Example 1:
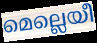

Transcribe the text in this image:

മെല്ലെയീ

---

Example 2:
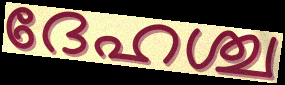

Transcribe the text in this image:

ദേഹശ്ച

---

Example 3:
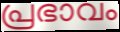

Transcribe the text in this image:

പ്രഭാവം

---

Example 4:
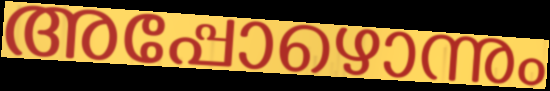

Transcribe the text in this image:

അപ്പോഴൊന്നും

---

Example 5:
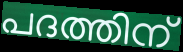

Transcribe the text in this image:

പദത്തിന്